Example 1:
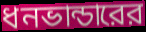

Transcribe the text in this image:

ধনভান্ডারের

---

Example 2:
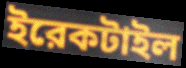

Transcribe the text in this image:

ইরেকটাইল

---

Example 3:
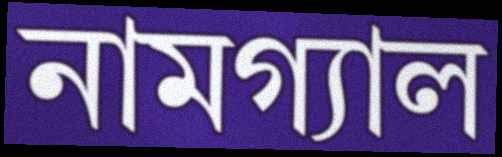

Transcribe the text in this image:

নামগ্যাল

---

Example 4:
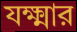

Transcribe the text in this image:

যক্ষ্মার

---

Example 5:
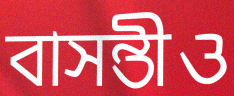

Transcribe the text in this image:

বাসন্তীও